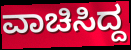
ವಾಚಿಸಿದ್ದ